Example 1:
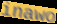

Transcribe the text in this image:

inawo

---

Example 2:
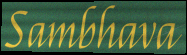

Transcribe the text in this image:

Sambhava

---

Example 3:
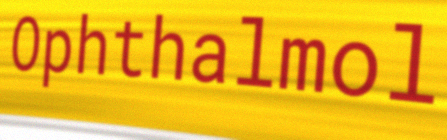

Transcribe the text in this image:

Ophthalmol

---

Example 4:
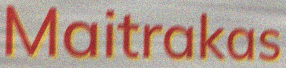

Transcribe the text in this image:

Maitrakas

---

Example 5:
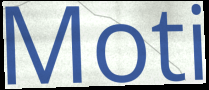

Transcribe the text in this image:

Moti